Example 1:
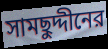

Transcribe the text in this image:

সামছুদ্দীনের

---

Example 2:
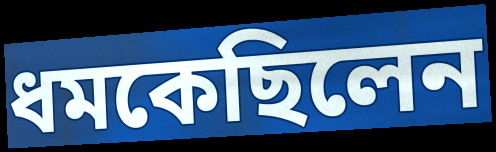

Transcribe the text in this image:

ধমকেছিলেন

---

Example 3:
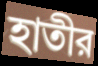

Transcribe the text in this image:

হাতীর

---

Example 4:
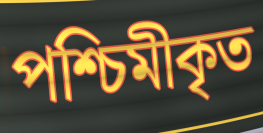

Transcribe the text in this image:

পশ্চিমীকৃত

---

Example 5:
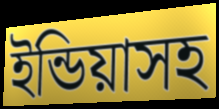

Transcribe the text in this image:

ইন্ডিয়াসহ